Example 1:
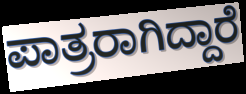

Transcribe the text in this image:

ಪಾತ್ರರಾಗಿದ್ದಾರೆ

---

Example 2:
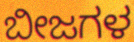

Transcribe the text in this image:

ಬೀಜಗಳ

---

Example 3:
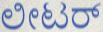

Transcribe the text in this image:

ಲೀಟರ್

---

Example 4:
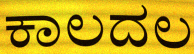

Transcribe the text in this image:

ಕಾಲದಲ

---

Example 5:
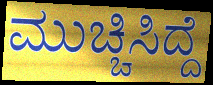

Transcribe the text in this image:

ಮುಚ್ಚಿಸಿದ್ದೆ